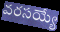
వరసయ్యే